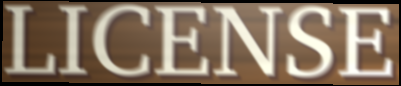
LICENSE